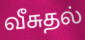
வீசுதல்